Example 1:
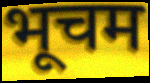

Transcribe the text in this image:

भूचम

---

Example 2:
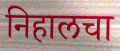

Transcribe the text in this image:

निहालचा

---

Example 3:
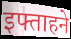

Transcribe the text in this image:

इफ्ताहने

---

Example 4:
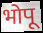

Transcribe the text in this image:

भोपू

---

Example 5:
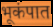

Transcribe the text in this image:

भूकंपात